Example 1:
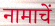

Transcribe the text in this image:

नामाचें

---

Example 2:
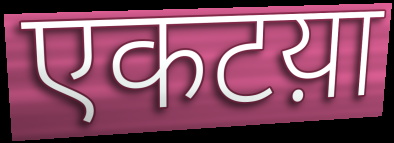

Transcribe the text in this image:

एकटय़ा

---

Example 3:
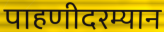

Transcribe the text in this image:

पाहणीदरम्यान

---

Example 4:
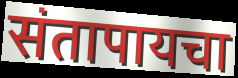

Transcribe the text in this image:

संतापायचा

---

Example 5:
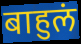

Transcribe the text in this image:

बाहुलं